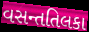
વસન્તતિલકા